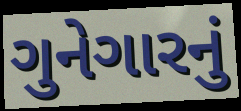
ગુનેગારનું